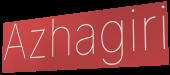
Azhagiri